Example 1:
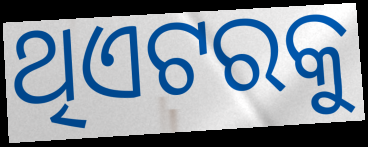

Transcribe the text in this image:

ଥିଏଟରକୁ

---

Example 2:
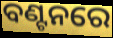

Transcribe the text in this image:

ବଣ୍ଟନରେ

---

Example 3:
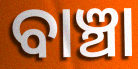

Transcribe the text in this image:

ବାଞ୍ଚା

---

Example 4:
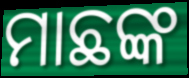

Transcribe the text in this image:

ମାଛଙ୍କ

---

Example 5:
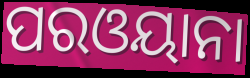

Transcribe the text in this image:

ପରଓୟାନା